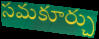
సమకూర్చు